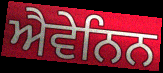
ਐਵੇਨਿਨ